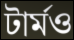
টার্মও